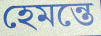
হেমন্তে